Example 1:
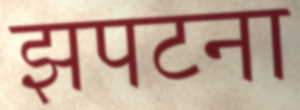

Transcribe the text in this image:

झपटना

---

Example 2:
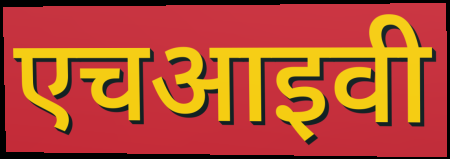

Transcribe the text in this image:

एचआइवी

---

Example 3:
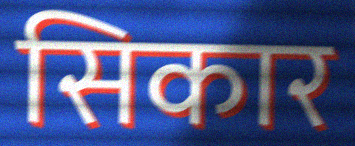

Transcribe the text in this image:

सिकार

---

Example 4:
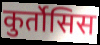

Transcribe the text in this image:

कुर्तोसिस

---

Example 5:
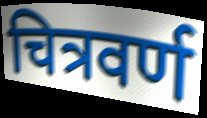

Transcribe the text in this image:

चित्रवर्ण